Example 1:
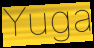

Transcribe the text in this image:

Yuga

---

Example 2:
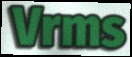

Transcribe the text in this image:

Vrms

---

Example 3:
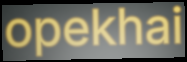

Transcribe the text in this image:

opekhai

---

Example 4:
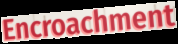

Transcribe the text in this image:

Encroachment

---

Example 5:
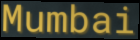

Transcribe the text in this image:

Mumbai